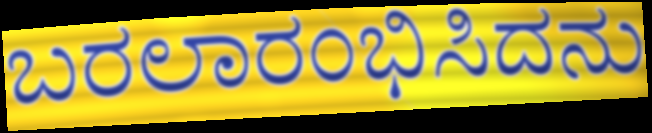
ಬರಲಾರಂಭಿಸಿದನು